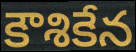
కౌశికేన